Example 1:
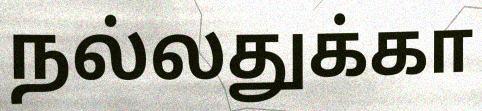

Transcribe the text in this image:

நல்லதுக்கா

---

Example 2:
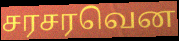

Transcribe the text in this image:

சரசரவென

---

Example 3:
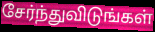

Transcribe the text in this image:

சேர்ந்துவிடுங்கள்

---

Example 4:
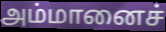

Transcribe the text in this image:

அம்மானைச்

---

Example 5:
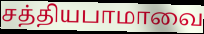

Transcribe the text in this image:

சத்தியபாமாவை